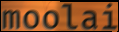
moolai